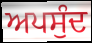
ਅਪਸੁੰਦ